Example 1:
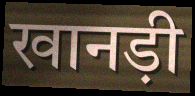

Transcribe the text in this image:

खानड़ी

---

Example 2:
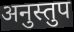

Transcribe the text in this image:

अनुस्तुप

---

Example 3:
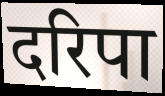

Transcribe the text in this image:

दरिपा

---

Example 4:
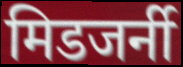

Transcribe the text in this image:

मिडजर्नी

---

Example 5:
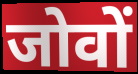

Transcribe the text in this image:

जोवों